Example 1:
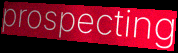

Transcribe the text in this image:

prospecting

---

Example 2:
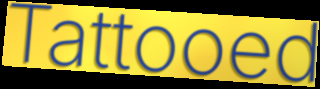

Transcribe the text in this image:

Tattooed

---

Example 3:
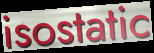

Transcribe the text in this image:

isostatic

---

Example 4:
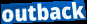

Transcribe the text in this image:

outback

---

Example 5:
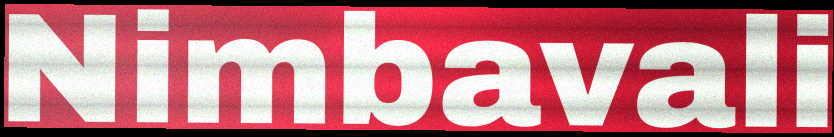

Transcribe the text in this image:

Nimbavali